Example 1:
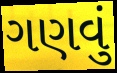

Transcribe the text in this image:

ગણવું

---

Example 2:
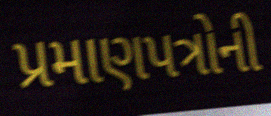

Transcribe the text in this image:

પ્રમાણપત્રોની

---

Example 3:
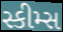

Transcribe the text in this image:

સ્કીમ્સ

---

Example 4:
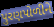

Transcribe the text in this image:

પુરણપોળીને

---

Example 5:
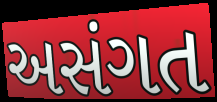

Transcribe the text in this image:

અસંગત